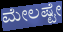
ಮೇಲಷ್ಟೇ